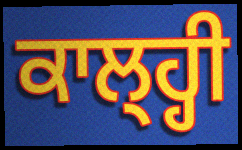
ਕਾਲ੍ਹ੍ਹੀ